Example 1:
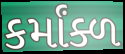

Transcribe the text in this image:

કર્માંક્ળ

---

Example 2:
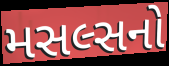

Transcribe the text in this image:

મસલ્સનો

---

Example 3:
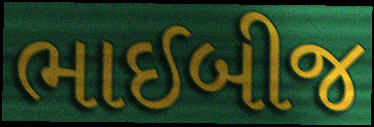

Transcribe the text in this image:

ભાઈબીજ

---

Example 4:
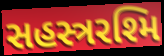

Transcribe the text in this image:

સહસ્ત્રરશ્મિ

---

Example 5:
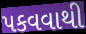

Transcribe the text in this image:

પકવવાથી